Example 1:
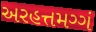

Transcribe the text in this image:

અરહત્તમગ્ગં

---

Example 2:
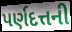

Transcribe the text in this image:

પર્ણદત્તની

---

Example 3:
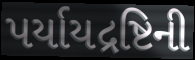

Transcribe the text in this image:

પર્યાયદ્રષ્ટિની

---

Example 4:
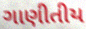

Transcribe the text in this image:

ગાણીતીય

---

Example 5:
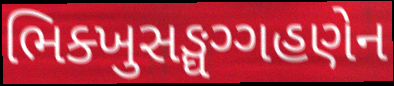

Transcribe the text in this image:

ભિક્ખુસઙ્ઘગ્ગહણેન